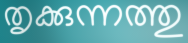
തൃക്കുന്നത്തു